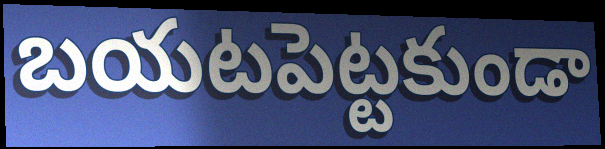
బయటపెట్టకుండా